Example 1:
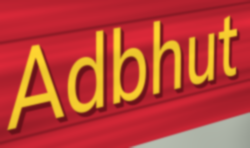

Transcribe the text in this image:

Adbhut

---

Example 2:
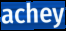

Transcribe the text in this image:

achey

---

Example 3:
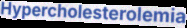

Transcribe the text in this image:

Hypercholesterolemia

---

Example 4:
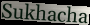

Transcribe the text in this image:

Sukhacha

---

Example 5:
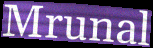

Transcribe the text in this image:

Mrunal